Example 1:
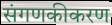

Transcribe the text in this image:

संगणकीकरण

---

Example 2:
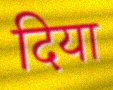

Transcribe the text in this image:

दिया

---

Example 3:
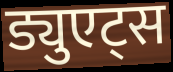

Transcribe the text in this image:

ड्युएट्स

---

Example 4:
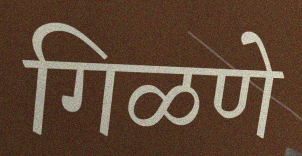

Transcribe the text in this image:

गिळणे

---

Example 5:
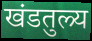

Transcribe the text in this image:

खंडतुल्य